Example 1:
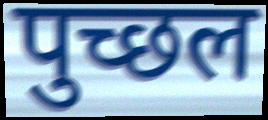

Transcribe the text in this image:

पुच्छल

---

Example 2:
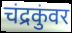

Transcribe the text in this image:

चंद्रकुंवर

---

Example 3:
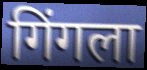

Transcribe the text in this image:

गिंगला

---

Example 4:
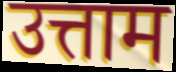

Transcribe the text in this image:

उत्ताम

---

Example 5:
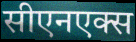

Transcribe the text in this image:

सीएनएक्स